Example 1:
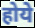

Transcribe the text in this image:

होये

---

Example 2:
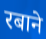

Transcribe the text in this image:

रबाने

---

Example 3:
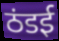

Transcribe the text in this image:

ठंडई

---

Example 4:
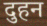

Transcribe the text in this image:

दुहन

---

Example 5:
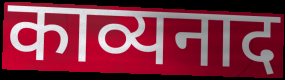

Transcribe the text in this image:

काव्यनाद